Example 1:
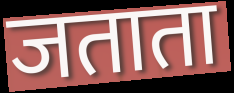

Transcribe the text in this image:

जताता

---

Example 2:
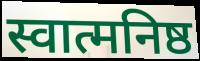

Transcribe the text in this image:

स्वात्मनिष्ठ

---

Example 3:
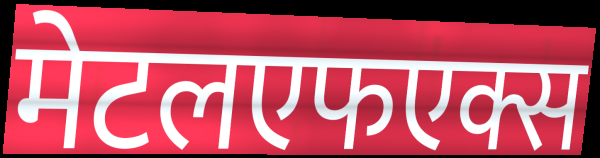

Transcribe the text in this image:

मेटलएफएक्स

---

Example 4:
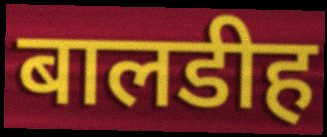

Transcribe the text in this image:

बालडीह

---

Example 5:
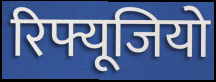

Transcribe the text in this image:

रिफ्यूजियो